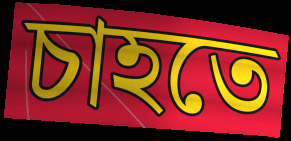
চাহতে